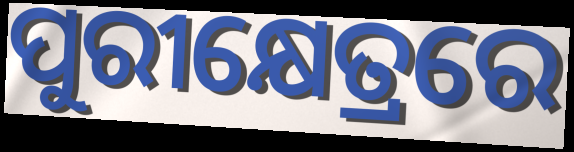
ପୁରୀକ୍ଷେତ୍ରରେ